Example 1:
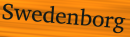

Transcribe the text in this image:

Swedenborg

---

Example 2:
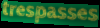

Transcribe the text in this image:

trespasses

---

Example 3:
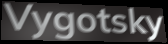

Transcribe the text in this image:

Vygotsky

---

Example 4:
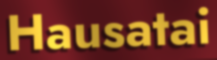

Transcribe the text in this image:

Hausatai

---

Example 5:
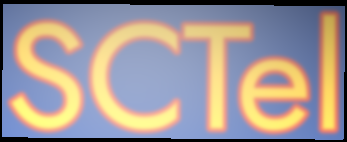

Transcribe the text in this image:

SCTel